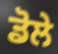
ਡੋਲੇ